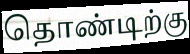
தொண்டிற்கு